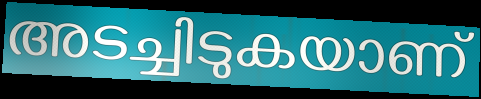
അടച്ചിടുകയാണ്